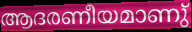
ആദരണീയമാണു്